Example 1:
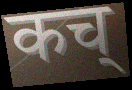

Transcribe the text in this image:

कच्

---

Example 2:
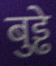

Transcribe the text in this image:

बुड्ढे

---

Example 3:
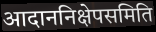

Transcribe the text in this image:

आदाननिक्षेपसमिति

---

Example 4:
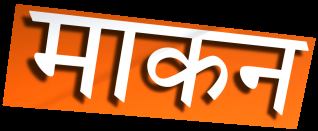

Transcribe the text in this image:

माकन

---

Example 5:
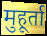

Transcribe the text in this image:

मुहूर्ता